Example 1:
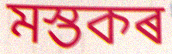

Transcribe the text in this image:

মস্তকৰ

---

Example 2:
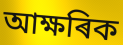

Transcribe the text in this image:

আক্ষৰিক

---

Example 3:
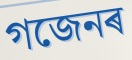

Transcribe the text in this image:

গজেনৰ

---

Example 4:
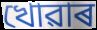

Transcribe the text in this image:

খোৱাৰ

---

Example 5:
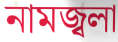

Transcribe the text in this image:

নামজ্বলা